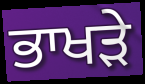
ਭਾਖੜੇ